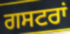
ਗਸਟਰਾਂ